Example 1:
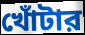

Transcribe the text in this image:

খোঁটার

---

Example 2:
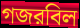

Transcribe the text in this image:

গজরবিল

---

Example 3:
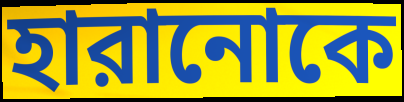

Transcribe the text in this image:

হারানোকে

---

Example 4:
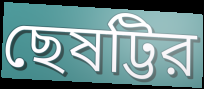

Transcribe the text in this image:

ছেষট্টির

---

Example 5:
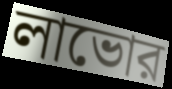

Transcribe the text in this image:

লাভোর